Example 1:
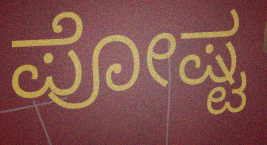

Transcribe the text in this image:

ಪೋಷ್ಟ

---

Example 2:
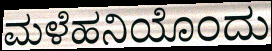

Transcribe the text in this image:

ಮಳೆಹನಿಯೊಂದು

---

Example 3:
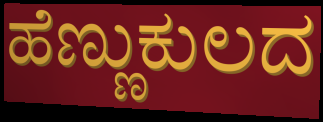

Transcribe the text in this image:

ಹೆಣ್ಣುಕುಲದ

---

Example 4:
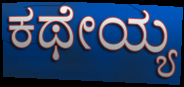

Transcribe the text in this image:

ಕಥೇಯ್ಯ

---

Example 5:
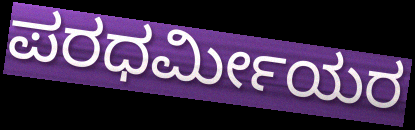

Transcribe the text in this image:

ಪರಧರ್ಮೀಯರ